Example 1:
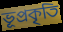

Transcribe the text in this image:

ভূপ্রকৃতি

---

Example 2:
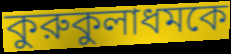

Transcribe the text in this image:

কুরুকুলাধমকে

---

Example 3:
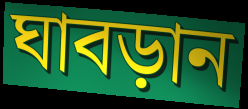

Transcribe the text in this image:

ঘাবড়ান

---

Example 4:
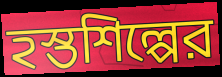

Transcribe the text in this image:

হস্তশিল্পের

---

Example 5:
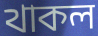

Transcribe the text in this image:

থাকল